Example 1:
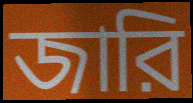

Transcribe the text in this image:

জারি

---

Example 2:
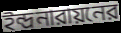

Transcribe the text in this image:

ইন্দ্রনারায়নের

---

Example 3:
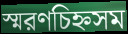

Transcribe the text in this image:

স্মরণচিহ্নসম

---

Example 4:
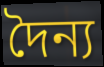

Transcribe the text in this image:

দৈন্য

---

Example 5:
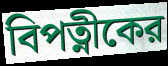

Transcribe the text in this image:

বিপত্নীকের